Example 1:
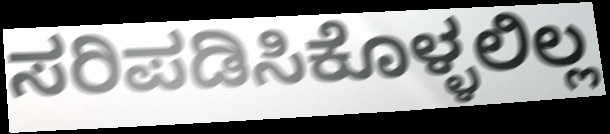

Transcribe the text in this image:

ಸರಿಪಡಿಸಿಕೊಳ್ಳಲಿಲ್ಲ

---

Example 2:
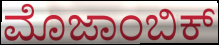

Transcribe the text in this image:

ಮೊಜಾಂಬಿಕ್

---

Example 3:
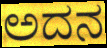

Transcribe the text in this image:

ಅದನ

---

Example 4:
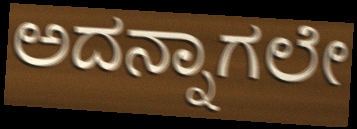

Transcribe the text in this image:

ಅದನ್ನಾಗಲೇ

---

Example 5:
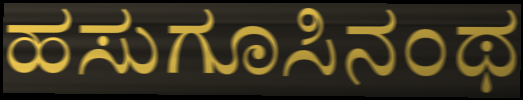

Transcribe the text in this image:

ಹಸುಗೂಸಿನಂಥ